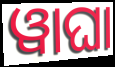
ୱାଘା